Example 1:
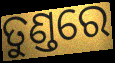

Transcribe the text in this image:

ତୁଣ୍ଡରେ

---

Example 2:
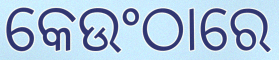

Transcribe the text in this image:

କେଉଂଠାରେ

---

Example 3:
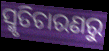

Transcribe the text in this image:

ସ୍ମୃତିଚାରଣରୁ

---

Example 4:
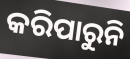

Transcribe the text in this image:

କରିପାରୁନି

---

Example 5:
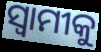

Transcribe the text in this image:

ସ୍ବାମୀକୁ